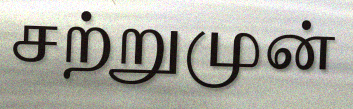
சற்றுமுன்